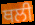
ਥਲੀ